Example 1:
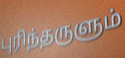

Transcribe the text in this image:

புரிந்தருளும்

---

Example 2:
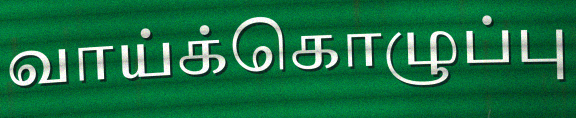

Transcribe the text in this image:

வாய்க்கொழுப்பு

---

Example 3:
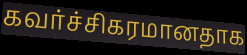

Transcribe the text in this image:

கவர்ச்சிகரமானதாக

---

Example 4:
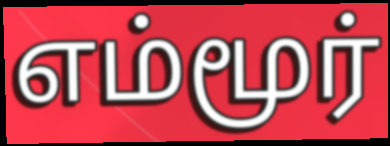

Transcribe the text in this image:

எம்மூர்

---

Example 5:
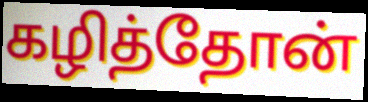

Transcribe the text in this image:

கழித்தோன்